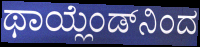
ಥಾಯ್ಲೆಂಡ್‌ನಿಂದ